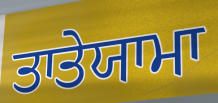
ਤਾਤੇਯਾਮਾ